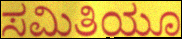
ಸಮಿತಿಯೂ